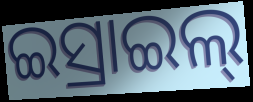
ଇସ୍ରାଇଲ୍